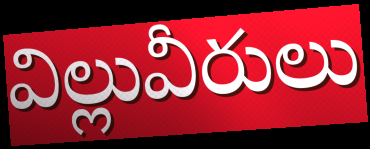
విల్లువీరులు